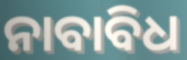
ନାବାବିଧ